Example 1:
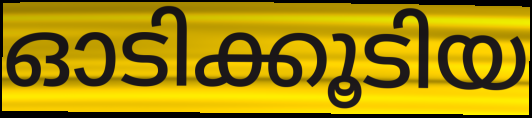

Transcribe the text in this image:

ഓടിക്കൂടിയ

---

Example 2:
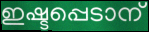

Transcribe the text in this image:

ഇഷ്ടപ്പെടാന്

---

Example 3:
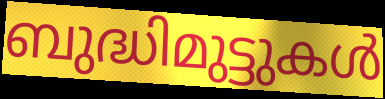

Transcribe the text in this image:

ബുദ്ധിമുട്ടുകൾ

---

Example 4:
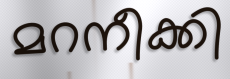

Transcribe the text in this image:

മറനീക്കി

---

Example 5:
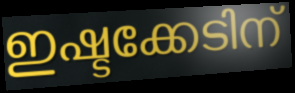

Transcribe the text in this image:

ഇഷ്ടക്കേടിന്